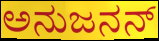
ಅನುಜನನ್